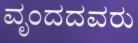
ವೃಂದದವರು